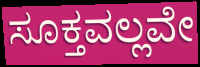
ಸೂಕ್ತವಲ್ಲವೇ